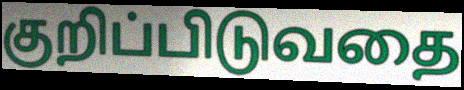
குறிப்பிடுவதை